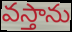
వస్తాను